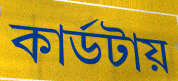
কার্ডটায়